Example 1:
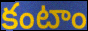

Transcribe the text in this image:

కంటాం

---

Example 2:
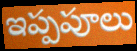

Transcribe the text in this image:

ఇప్పపూలు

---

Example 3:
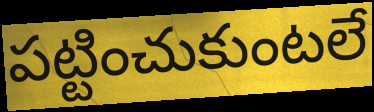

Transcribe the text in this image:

పట్టించుకుంటలే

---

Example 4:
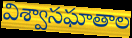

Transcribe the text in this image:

విశ్వాసఘాతాల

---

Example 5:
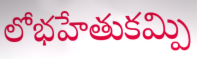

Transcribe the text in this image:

లోభహేతుకమ్పి